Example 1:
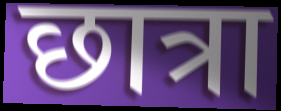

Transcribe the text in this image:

छात्रा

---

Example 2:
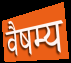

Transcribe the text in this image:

वैषम्य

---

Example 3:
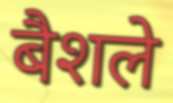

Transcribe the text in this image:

बैशले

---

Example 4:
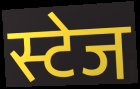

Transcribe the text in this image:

स्टेज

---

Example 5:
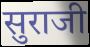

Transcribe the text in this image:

सुराजी